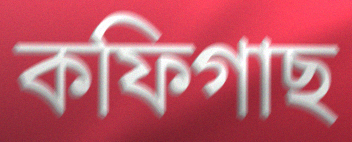
কফিগাছ